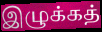
இழுக்கத்